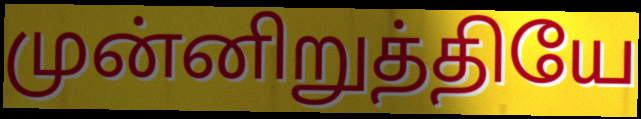
முன்னிறுத்தியே